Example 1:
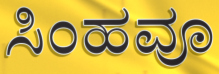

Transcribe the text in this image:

ಸಿಂಹವೂ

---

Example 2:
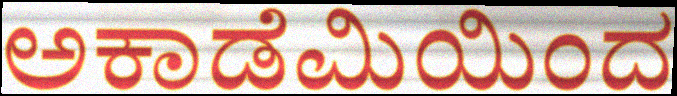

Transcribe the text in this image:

ಅಕಾಡೆಮಿಯಿಂದ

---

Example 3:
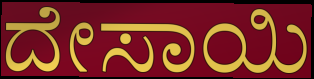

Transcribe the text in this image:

ದೇಸಾಯಿ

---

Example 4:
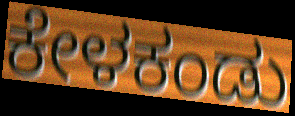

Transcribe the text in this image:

ಕೇಳಕಂಡು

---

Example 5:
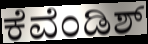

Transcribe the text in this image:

ಕೆವೆಂಡಿಶ್